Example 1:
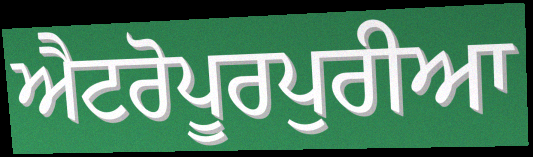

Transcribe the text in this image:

ਐਟਰੋਪੂਰਪੁਰੀਆ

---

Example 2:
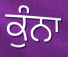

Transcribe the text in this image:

ਕੁੰਨਾ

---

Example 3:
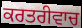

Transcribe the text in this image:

ਕਰਤਰੀਵਾਚ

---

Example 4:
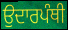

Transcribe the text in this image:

ਉਦਾਰਪੰਥੀ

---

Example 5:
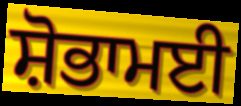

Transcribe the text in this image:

ਸ਼ੋਭਾਮਈ